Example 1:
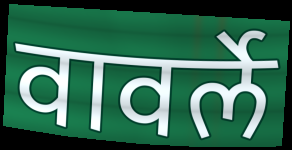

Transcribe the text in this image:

वावर्ले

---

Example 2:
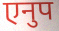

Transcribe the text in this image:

एनुप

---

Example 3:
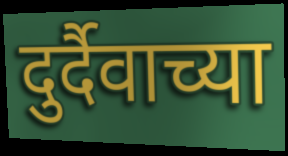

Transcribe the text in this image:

दुर्दैवाच्या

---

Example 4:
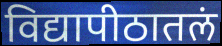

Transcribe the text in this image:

विद्यापीठातलं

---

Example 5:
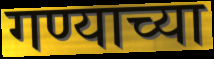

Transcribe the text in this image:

गण्याच्या